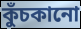
কুঁচকানো